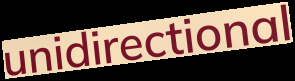
unidirectional